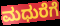
ಮಧುರೆಗೆ